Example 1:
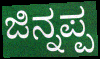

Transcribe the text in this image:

ಜಿನ್ನಪ್ಪ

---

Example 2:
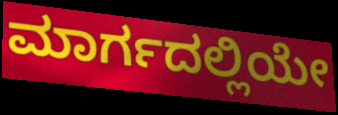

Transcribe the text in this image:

ಮಾರ್ಗದಲ್ಲಿಯೇ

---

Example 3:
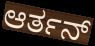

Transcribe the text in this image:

ಆರ್ತನ್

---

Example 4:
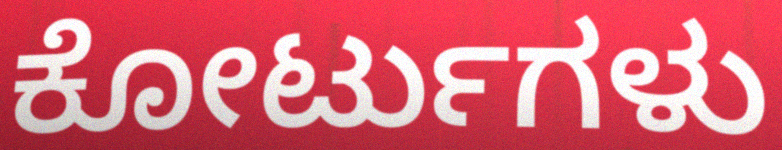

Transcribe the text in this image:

ಕೋರ್ಟುಗಳು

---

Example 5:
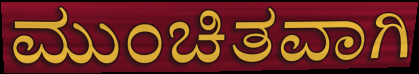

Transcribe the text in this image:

ಮುಂಚಿತವಾಗಿ